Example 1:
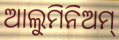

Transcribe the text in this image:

ଆଲୁମିନିଅମ୍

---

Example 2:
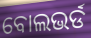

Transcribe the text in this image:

ବୋଲଭର୍ଡ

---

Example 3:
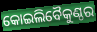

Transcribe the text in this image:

କୋଇଲିବୈକୁଣ୍ଠର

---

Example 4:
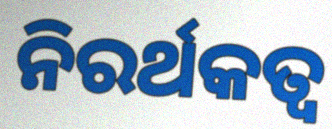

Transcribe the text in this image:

ନିରର୍ଥକତ୍ୱ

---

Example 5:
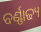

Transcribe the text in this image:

ବର୍ଣ୍ଣାଢ୍ୟ